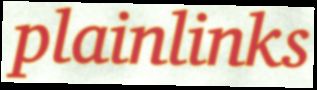
plainlinks